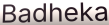
Badheka